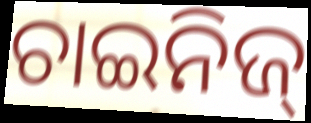
ଚାଇନିଜ୍